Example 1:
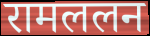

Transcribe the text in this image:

रामललन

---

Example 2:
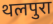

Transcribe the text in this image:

थलपुरा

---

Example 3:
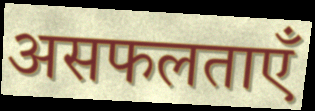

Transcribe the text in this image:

असफलताएँ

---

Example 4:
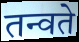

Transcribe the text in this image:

तन्वते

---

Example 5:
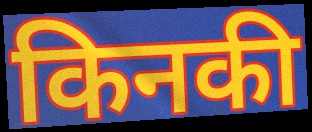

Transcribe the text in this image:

किनकी